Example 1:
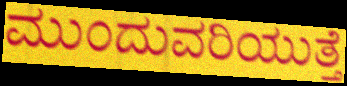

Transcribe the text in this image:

ಮುಂದುವರಿಯುತ್ತೆ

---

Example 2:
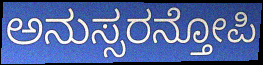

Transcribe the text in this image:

ಅನುಸ್ಸರನ್ತೋಪಿ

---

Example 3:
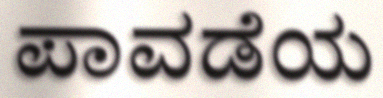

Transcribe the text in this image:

ಪಾವಡೆಯ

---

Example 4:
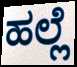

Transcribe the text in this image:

ಹಲ್ಲೆ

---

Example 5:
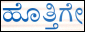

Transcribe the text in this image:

ಹೊತ್ತಿಗೇ